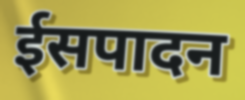
ईसपादन